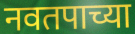
नवतपाच्या